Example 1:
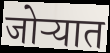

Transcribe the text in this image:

जोऱ्यात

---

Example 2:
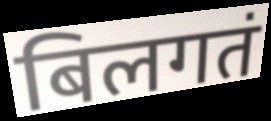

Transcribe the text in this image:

बिलगतं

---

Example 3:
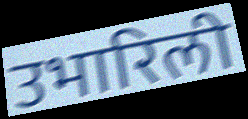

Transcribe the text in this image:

उभारिली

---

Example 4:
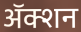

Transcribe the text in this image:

ॲक्शन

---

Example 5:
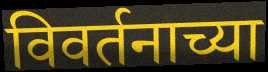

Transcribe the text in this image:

विवर्तनाच्या